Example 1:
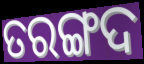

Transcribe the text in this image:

ତରଙ୍ଗଦ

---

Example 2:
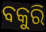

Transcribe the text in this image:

ବକୁରି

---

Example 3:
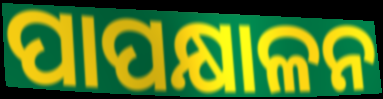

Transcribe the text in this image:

ପାପକ୍ଷାଳନ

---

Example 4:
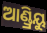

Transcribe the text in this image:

ଆଣ୍ଡ୍ରିୟୁ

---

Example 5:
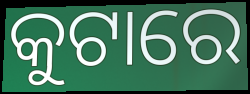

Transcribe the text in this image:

କୁଟାରେ